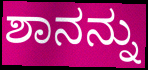
ಶಾನನ್ನು